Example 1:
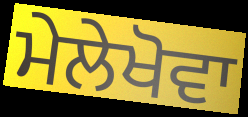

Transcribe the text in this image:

ਮੇਲੇਖੋਵਾ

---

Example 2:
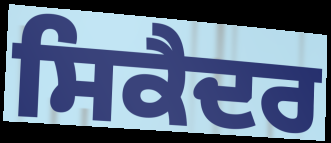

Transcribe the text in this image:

ਸਿਕੈਦਰ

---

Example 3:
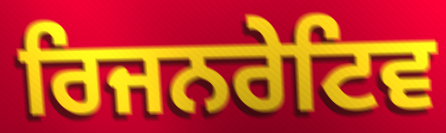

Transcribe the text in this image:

ਰਿਜਨਰੇਟਿਵ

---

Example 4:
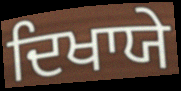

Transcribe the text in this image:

ਦਿਖਾਯੇ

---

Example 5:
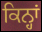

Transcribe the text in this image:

ਕਿਨ੍ਹਾਂ